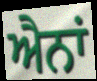
ਐਨਾਂ